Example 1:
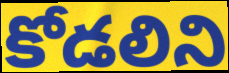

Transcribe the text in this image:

కోడలిని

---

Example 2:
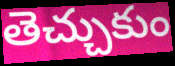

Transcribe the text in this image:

తెచ్చుకుం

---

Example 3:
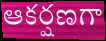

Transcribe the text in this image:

ఆకర్షణగా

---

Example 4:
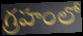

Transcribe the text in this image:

గ్రహంలో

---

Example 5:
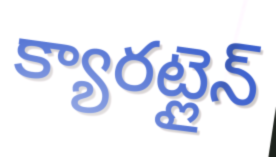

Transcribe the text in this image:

క్యారట్లైన్